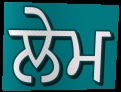
ਲੇਮ